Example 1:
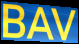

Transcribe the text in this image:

BAV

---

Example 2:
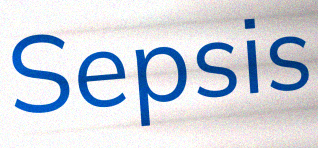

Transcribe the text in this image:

Sepsis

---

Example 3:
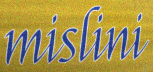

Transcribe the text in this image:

mislini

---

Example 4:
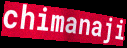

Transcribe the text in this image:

chimanaji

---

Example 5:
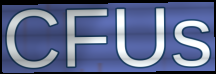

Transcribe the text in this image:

CFUs